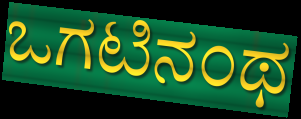
ಒಗಟಿನಂಥ